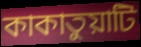
কাকাতুয়াটি